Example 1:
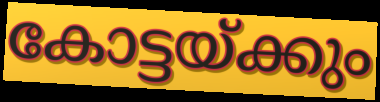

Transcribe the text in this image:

കോട്ടയ്ക്കും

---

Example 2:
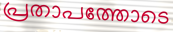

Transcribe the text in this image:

പ്രതാപത്തോടെ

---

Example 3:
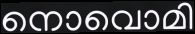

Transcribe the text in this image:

നൊവൊമി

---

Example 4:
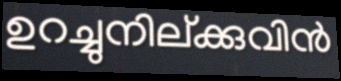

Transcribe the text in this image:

ഉറച്ചുനില്ക്കുവിൻ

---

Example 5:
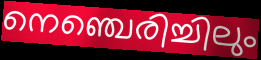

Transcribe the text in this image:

നെഞ്ചെരിച്ചിലും